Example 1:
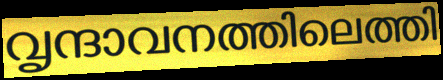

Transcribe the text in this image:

വൃന്ദാവനത്തിലെത്തി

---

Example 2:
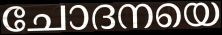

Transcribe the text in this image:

ചോദനയെ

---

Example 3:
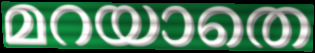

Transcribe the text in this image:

മറയാതെ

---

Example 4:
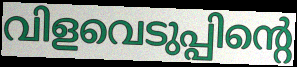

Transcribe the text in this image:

വിളവെടുപ്പിന്റെ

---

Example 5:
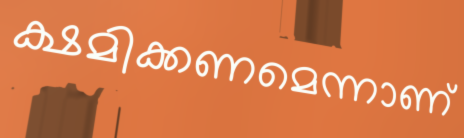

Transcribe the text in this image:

ക്ഷമിക്കണമെന്നാണ്